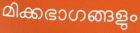
മിക്കഭാഗങ്ങളും